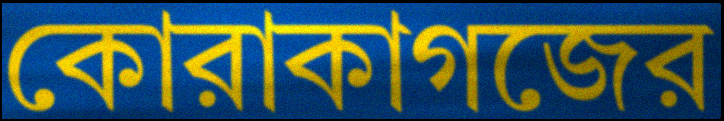
কোরাকাগজের